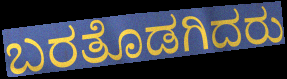
ಬರತೊಡಗಿದರು